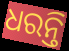
ଧରନ୍ତି